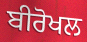
ਬੀਰੋਖਲ